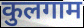
कुलगाम